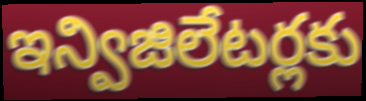
ఇన్విజిలేటర్లకు